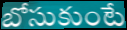
బోసుకుంటే